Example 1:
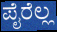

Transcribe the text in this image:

ಪೈರೆಲ್ಲ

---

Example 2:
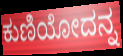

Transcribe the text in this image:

ಕುಣಿಯೋದನ್ನ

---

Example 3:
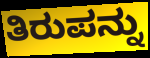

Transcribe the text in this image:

ತಿರುಪನ್ನು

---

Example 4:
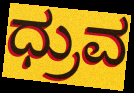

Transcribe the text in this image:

ಧ್ರುವ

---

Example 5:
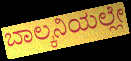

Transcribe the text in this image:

ಬಾಲ್ಕನಿಯಲ್ಲೇ